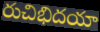
రుచిభిదయా